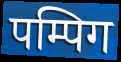
पम्पिग